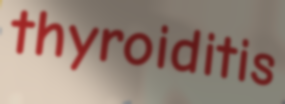
thyroiditis